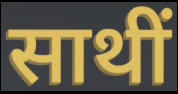
साथीं